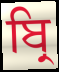
ਬ੍ਰਿ